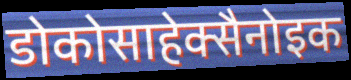
डोकोसाहेक्सैनोइक